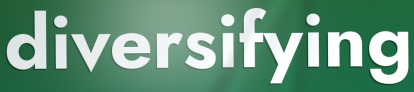
diversifying